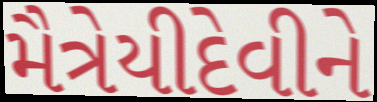
મૈત્રેયીદેવીને